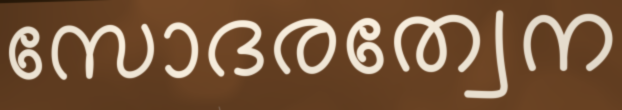
സോദരത്വേന